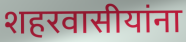
शहरवासीयांना